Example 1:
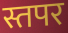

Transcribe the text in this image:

स्तपर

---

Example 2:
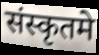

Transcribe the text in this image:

संस्कृतमे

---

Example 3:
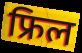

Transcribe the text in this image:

फ्रिल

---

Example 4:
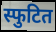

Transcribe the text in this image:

स्फुटित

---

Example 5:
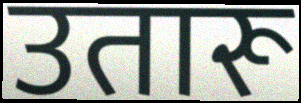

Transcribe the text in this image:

उतारू